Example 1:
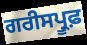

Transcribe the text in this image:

ਗਰੀਸਪ੍ਰੂਫ਼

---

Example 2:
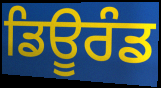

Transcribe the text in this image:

ਡਿਊਰੰਡ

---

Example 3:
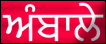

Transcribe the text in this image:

ਅੰਬਾਲੇ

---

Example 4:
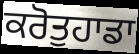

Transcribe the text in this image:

ਕਰੋਤੁਹਾਡਾ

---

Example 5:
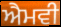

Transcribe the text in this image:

ਐਮਵੀ